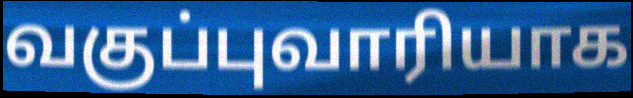
வகுப்புவாரியாக